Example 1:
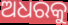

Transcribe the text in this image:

ଅଧରକୁ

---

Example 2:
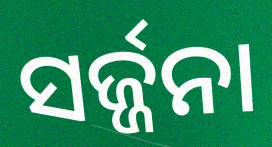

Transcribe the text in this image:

ସର୍ଜ୍ଜନା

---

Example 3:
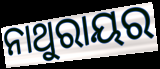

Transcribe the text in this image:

ନାଥୁରାୟର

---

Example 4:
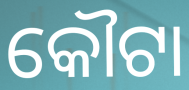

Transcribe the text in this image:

କୌଟା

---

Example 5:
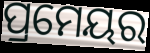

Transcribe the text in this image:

ପ୍ରମେୟର